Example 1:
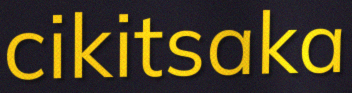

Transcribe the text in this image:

cikitsaka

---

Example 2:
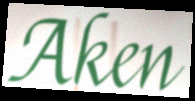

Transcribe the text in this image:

Aken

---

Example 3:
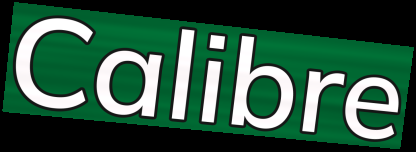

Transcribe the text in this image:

Calibre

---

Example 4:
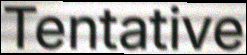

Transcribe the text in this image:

Tentative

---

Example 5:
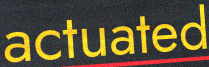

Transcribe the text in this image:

actuated